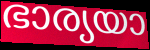
ഭാര്യയാ